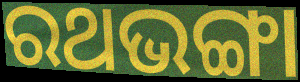
ରଥଭଙ୍ଗା